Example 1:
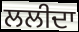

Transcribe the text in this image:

ਲਲੀਦਾ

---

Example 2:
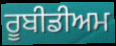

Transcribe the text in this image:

ਰੂਬੀਡੀਅਮ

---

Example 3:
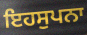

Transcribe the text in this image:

ਇਹਸੁਪਨਾ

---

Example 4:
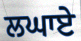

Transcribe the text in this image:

ਲਘਾਏ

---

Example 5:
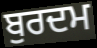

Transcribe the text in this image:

ਬੁਰਦਮ